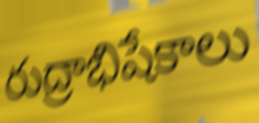
రుద్రాభిషేకాలు